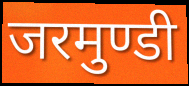
जरमुण्डी